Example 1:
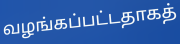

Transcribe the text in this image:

வழங்கப்பட்டதாகத்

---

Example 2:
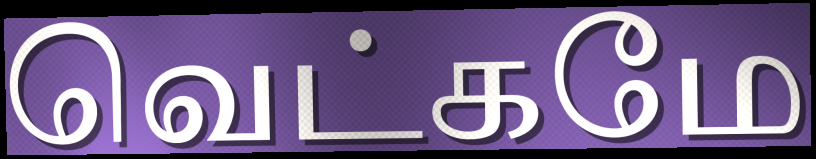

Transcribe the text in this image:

வெட்கமே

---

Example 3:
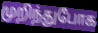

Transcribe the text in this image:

முறிந்துபோக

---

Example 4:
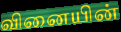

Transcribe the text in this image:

வினையின்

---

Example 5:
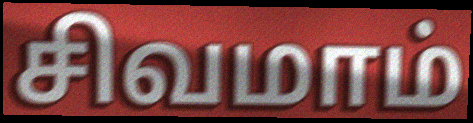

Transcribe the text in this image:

சிவமாம்